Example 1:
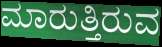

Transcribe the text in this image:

ಮಾರುತ್ತಿರುವ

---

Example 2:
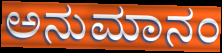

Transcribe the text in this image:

ಅನುಮಾನಂ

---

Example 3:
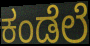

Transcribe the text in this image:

ಕಂಡೆಲೆ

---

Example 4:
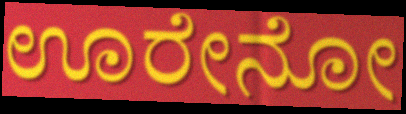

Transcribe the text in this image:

ಊರೇನೋ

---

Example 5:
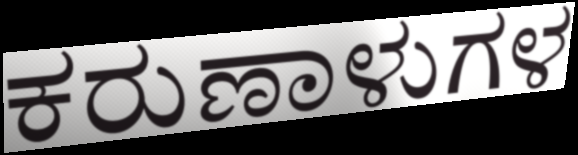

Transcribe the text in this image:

ಕರುಣಾಳುಗಳ